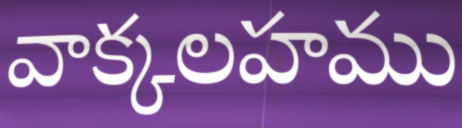
వాక్కలహము